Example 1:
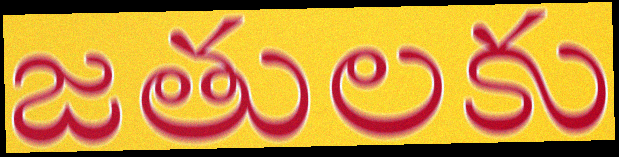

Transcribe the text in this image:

జతులకు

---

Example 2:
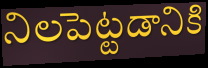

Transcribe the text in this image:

నిలపెట్టడానికి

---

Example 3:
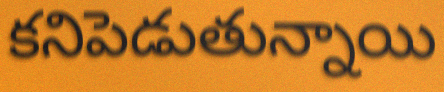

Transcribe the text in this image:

కనిపెడుతున్నాయి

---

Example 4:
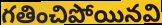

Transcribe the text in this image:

గతించిపోయినవి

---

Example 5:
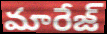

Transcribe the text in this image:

మారేజ్